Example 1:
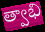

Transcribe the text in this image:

త్వాభి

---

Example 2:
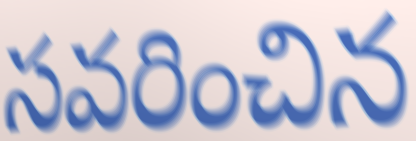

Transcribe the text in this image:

సవరించిన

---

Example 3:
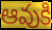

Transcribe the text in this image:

ఆవుకి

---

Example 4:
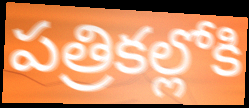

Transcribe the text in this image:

పత్రికల్లోకి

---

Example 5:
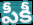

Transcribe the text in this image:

పీకీ